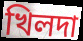
খিলদা